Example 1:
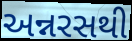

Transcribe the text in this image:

અન્નરસથી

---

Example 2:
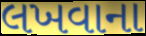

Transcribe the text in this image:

લખવાના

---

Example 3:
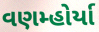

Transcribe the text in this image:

વણમ્હોર્યા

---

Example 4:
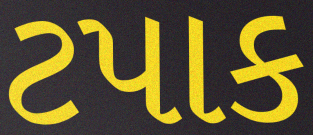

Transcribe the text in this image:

ટપાક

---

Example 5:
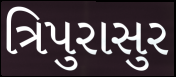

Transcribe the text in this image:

ત્રિપુરાસુર